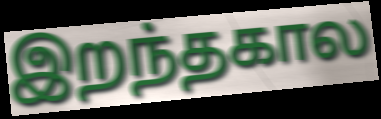
இறந்தகால